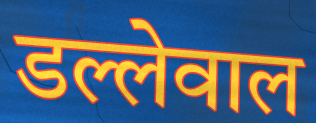
डल्लेवाल